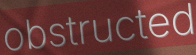
obstructed